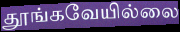
தூங்கவேயில்லை